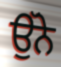
ਉੱਨੇ